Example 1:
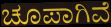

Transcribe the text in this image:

ಚೂಪಾಗಿವೆ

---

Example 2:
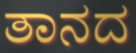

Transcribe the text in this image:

ತಾನದ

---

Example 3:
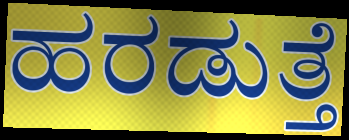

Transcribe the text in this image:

ಹರಡುತ್ತೆ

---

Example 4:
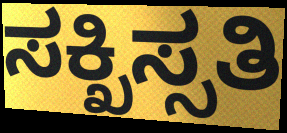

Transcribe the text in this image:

ಸಕ್ಖಿಸ್ಸತಿ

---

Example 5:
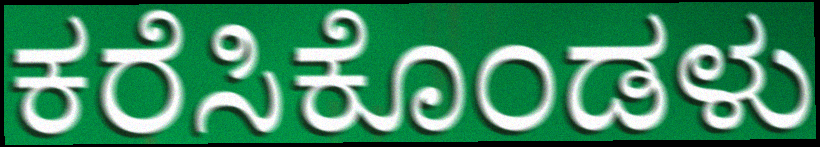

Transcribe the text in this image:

ಕರೆಸಿಕೊಂಡಳು